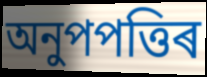
অনুপপত্তিৰ